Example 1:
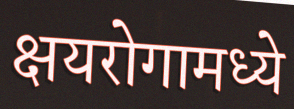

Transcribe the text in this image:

क्षयरोगामध्ये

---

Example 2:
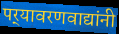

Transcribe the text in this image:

पर्यावरणवाद्यांनी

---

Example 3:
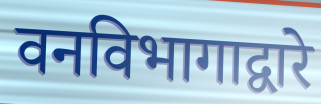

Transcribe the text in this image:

वनविभागाद्वारे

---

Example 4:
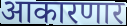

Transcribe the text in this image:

आकारणार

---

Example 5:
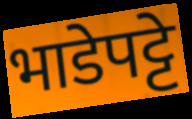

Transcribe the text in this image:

भाडेपट्टे